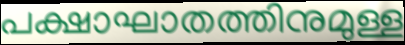
പക്ഷാഘാതത്തിനുമുള്ള